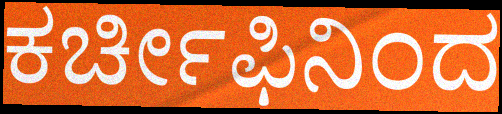
ಕರ್ಚೀಫಿನಿಂದ